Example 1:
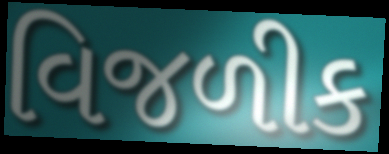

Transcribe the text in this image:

વિજળીક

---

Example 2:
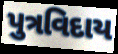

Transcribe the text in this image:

પુત્રવિદાય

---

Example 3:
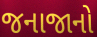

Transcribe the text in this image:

જનાજાનો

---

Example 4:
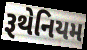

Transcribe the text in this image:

રૂથેનિયમ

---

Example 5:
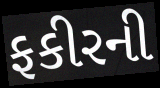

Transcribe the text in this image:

ફકીરની